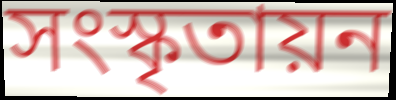
সংস্কৃতায়ন